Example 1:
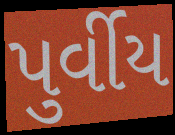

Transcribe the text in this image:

પુર્વીય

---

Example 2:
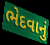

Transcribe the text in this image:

ભેદવાનું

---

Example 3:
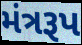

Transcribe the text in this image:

મંત્રરૂપ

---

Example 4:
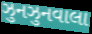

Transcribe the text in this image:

ઝુનઝુનવાલા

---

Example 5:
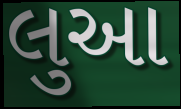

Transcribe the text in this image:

લુઆ